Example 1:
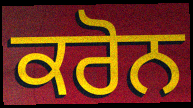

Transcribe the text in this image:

ਕਰੋਨ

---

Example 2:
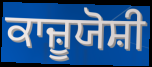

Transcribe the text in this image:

ਕਾਜ਼ੂਯੋਸ਼ੀ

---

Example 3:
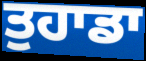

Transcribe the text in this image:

ਤੁਹਾਡਾ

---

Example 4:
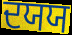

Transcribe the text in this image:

ਦਯਯ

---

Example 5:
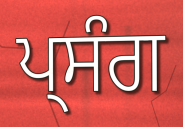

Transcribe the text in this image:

ਪ੍ਸੰਗ